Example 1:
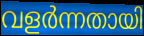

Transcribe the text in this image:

വളർന്നതായി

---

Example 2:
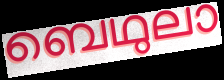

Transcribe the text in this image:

ബെഥുലാ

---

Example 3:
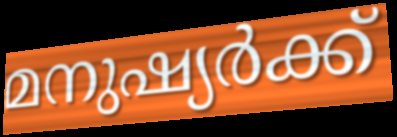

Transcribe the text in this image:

മനുഷ്യർക്ക്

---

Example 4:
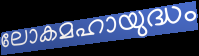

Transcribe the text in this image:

ലോകമഹായുദ്ധം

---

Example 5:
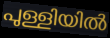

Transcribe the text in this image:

പുള്ളിയിൽ